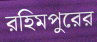
রহিমপুরের